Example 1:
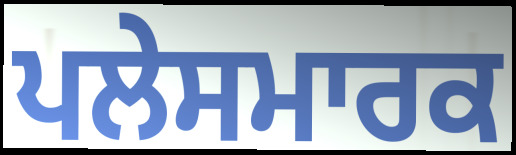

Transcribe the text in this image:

ਪਲੇਸਮਾਰਕ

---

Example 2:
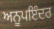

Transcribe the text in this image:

ਅਨੂਪਇੰਦਰ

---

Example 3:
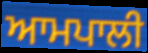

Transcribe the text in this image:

ਆਮਪਾਲੀ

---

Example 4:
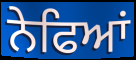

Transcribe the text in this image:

ਨੇਫਿਆਂ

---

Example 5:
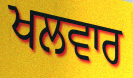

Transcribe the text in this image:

ਖਲਵਾਰ